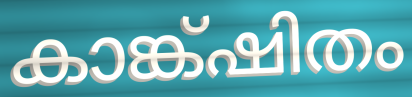
കാങ്ക്ഷിതം